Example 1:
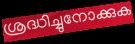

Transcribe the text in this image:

ശ്രദ്ധിച്ചുനോക്കുക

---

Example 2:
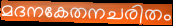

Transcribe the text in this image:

മദനകേതനചരിതം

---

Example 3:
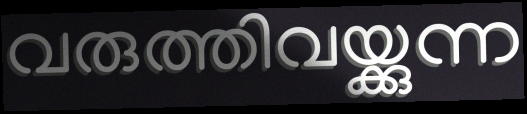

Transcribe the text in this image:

വരുത്തിവയ്ക്കുന്ന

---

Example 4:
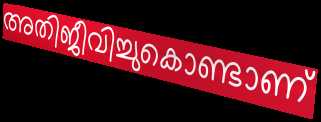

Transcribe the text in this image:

അതിജീവിച്ചുകൊണ്ടാണ്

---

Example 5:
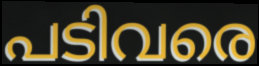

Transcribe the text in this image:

പടിവരെ